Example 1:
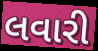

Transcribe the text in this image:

લવારી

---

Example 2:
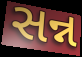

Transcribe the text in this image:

સન્ન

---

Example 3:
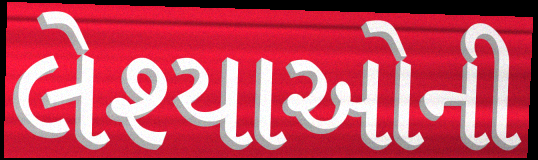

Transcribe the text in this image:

લેશ્યાઓની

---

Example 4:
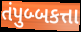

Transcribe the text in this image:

તંપુબ્બકત્તા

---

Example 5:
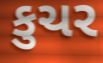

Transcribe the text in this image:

કુચર